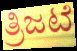
ತ್ರಿಜಟೆ